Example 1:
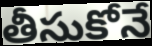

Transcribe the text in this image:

తీసుకోనే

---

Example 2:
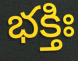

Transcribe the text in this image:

భక్తిః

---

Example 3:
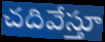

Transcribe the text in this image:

చదివేస్తూ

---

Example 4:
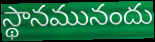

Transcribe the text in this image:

స్థానమునందు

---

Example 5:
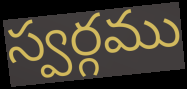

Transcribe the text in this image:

స్వర్గము